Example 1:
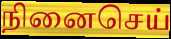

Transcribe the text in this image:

நினைசெய்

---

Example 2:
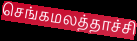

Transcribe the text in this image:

செங்கமலத்தாச்சி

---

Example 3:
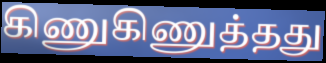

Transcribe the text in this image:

கிணுகிணுத்தது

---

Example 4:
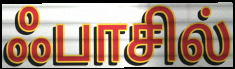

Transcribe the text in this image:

ஃபாசில்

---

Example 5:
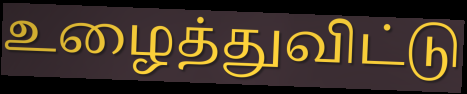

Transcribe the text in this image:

உழைத்துவிட்டு